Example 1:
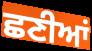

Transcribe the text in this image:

ਛਣੀਆਂ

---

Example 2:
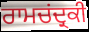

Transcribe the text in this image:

ਰਾਮਚਂਦ੍ਰਕੀ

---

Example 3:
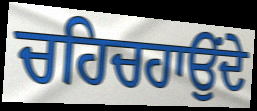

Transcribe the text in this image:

ਚਹਿਚਹਾਉਂਦੇ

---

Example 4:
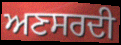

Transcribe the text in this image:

ਅਣਸਰਦੀ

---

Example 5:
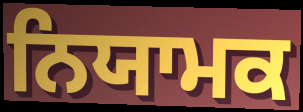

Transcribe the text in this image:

ਨਿਯਾਮਕ